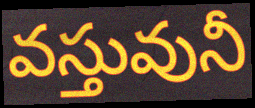
వస్తువునీ